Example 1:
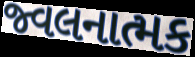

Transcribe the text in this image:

જ્વલનાત્મક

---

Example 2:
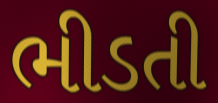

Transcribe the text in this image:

ભીડતી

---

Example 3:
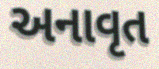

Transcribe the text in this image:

અનાવૃત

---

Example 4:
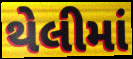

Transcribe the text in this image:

થેલીમાં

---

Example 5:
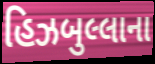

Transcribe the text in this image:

હિઝબુલ્લાના